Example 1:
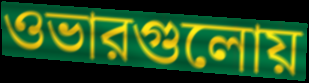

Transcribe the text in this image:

ওভারগুলোয়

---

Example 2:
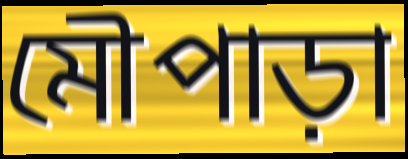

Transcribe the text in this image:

মৌপাড়া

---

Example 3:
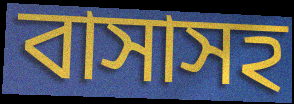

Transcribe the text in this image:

বাসাসহ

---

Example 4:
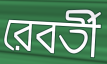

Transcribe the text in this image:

রেবর্তী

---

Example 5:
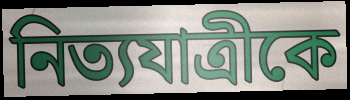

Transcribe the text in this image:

নিত্যযাত্রীকে